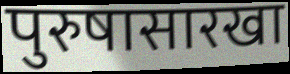
पुरुषासारखा